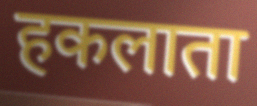
हकलाता